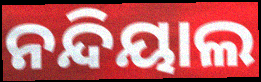
ନନ୍ଦିୟାଲ